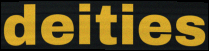
deities